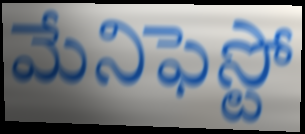
మేనిఫెస్టో